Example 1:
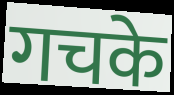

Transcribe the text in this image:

गचके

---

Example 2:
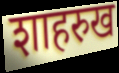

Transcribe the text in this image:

शाहरुख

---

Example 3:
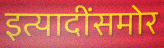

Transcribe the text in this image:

इत्यादींसमोर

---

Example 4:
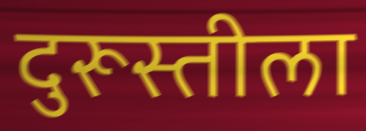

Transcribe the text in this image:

दुरूस्तीला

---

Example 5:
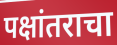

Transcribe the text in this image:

पक्षांतराचा